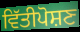
ਵਿੱਤੀਪੋਸ਼ਣ